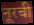
नूरची